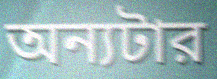
অন্যটার